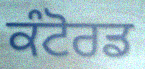
ਕੰਟੋਰਡ